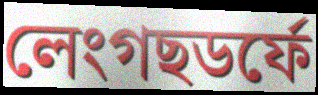
লেংগছডৰ্ফে